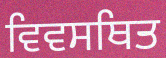
ਵਿਵਸਥਿਤ